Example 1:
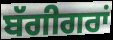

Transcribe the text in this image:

ਬੱਗੀਗਰਾਂ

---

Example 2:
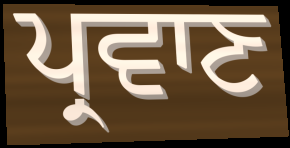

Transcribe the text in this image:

ਪ੍ਰਵਾਣ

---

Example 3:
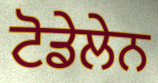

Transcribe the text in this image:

ਟੋਡੇਲੇਨ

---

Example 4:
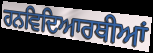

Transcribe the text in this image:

ਹਨਵਿਦਿਆਰਥੀਆਂ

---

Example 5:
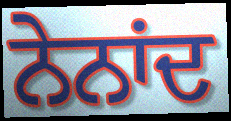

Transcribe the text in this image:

ਨੇਨਾਂਦ